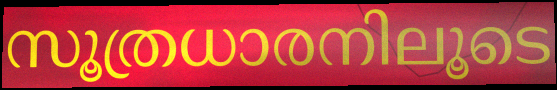
സൂത്രധാരനിലൂടെ